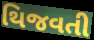
થિજવતી